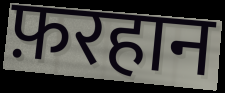
फ़रहान